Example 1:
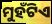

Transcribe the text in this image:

ମୁହଁଟିଏ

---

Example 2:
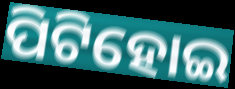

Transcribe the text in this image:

ପିଟିହୋଇ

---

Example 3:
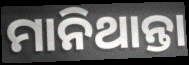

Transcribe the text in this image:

ମାନିଥାନ୍ତା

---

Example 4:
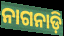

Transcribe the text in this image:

ନାଗନାଡ଼ି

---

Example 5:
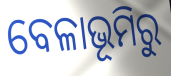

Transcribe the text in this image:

ବେଳାଭୂମିରୁ